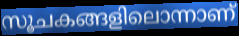
സൂചകങ്ങളിലൊന്നാണ്